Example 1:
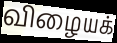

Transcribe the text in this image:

விழையக்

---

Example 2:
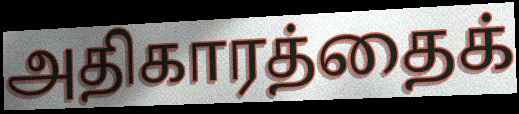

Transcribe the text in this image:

அதிகாரத்தைக்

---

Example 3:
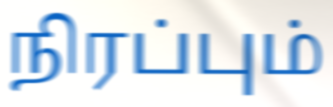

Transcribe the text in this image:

நிரப்பும்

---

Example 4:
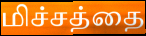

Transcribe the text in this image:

மிச்சத்தை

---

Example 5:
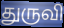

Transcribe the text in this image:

துருவி